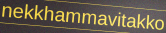
nekkhammavitakko